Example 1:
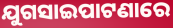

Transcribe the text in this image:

ଯୁଗସାଇପାଟଣାରେ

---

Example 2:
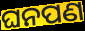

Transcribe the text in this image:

ଘନପଣ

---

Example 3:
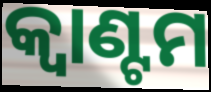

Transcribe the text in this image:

କ୍ୱାଣ୍ଟମ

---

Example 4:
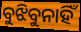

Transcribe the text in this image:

ବୁଝିବୁନାହିଁ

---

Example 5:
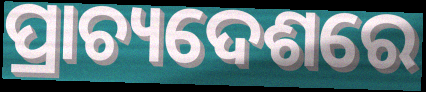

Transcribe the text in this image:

ପ୍ରାଚ୍ୟଦେଶରେ